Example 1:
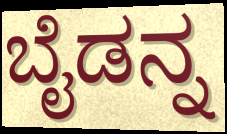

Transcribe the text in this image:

ಬೈಡನ್ನ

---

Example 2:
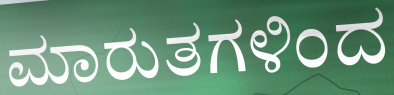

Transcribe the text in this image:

ಮಾರುತಗಳಿಂದ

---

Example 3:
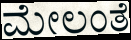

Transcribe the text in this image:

ಮೇಲಂತೆ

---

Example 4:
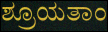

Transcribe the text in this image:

ಶ್ರೂಯತಾಂ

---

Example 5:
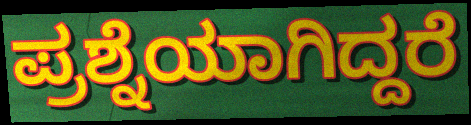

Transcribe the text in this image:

ಪ್ರಶ್ನೆಯಾಗಿದ್ದರೆ